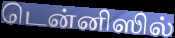
டென்னிஸில்